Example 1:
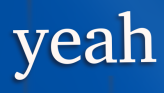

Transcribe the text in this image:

yeah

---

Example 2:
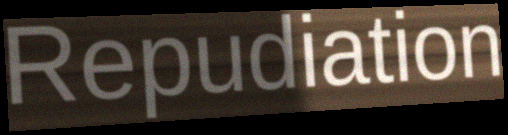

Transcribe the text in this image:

Repudiation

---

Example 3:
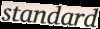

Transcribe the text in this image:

standard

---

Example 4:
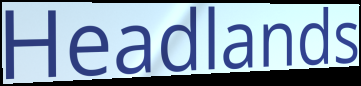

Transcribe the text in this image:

Headlands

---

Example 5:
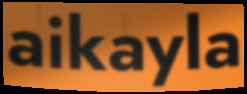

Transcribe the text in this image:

aikayla